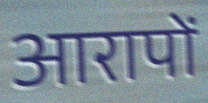
आरापों